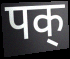
पक्